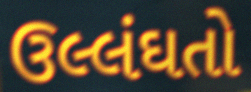
ઉલ્લંઘતો